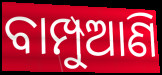
ବାମ୍ପୁଆଣି